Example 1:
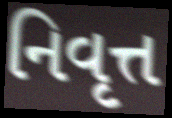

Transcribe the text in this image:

નિવૃત્ત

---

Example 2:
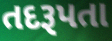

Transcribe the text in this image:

તદરૂપતા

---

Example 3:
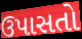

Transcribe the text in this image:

ઉપાસતો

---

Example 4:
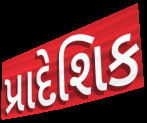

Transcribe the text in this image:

પ્રાદેશિક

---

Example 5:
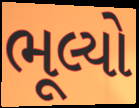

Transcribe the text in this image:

ભૂલ્યો